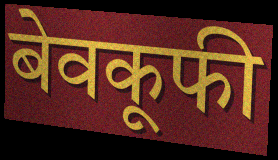
बेवकूफी